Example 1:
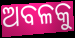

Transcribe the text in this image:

ଅବଳକୁ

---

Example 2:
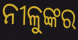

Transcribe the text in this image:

ନୀଳୁଙ୍କର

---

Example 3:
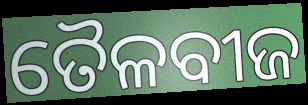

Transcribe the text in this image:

ତୈଳବୀଜ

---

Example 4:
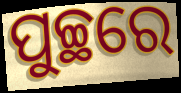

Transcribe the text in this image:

ପୁଚ୍ଛରେ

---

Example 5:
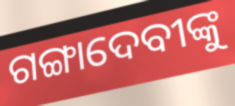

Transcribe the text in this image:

ଗଙ୍ଗାଦେବୀଙ୍କୁ